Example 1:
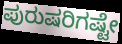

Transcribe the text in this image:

ಪುರುಷರಿಗಷ್ಟೇ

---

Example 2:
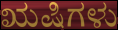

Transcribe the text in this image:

ಋಷಿಗಳು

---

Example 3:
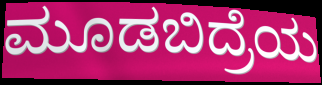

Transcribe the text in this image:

ಮೂಡಬಿದ್ರೆಯ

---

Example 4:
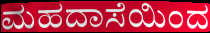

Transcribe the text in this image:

ಮಹದಾಸೆಯಿಂದ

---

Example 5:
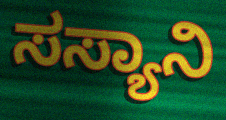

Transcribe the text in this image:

ಸಸ್ಯಾನಿ